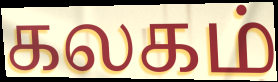
கலகம்